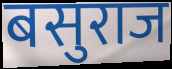
बसुराज